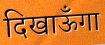
दिखाऊँगा